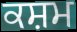
ਕਸ਼ਮ